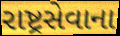
રાષ્ટ્રસેવાના